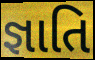
જ્ઞાતિ